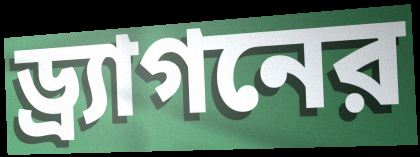
ড্র্যাগনের